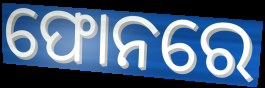
ଫୋନରେ